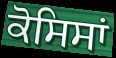
ਕੋਸਿਸਾਂ